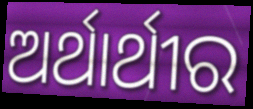
ଅର୍ଥାର୍ଥୀର